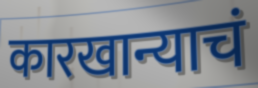
कारखान्याचं